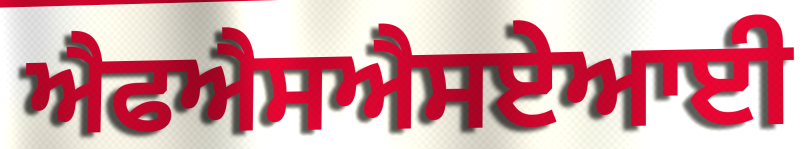
ਐਫਐਸਐਸਏਆਈ